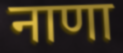
नाणा